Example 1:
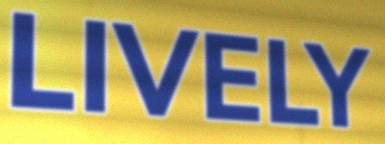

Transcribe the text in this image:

LIVELY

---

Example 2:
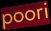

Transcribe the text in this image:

poori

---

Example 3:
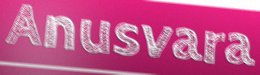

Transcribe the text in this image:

Anusvara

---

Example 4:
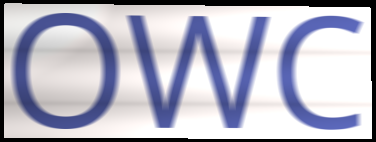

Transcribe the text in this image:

OWC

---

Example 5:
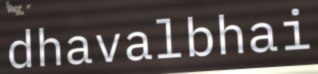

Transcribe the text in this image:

dhavalbhai